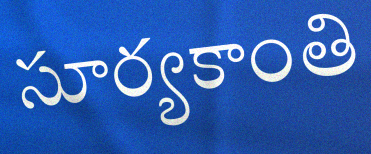
సూర్యకాంతి